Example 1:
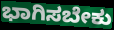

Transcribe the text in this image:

ಭಾಗಿಸಬೇಕು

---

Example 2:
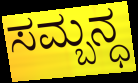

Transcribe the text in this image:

ಸಮ್ಬನ್ಧ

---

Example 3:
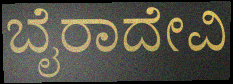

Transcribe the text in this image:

ಬೈರಾದೇವಿ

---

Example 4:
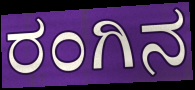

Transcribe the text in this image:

ರಂಗಿನ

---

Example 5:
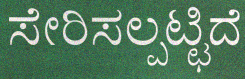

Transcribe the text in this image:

ಸೇರಿಸಲ್ಪಟ್ಟಿದೆ